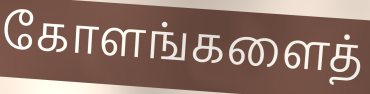
கோளங்களைத்